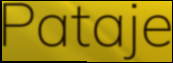
Pataje